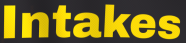
Intakes